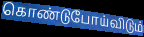
கொண்டுபோய்விடும்